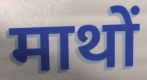
माथों